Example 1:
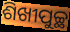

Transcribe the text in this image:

ଶିଖୀପୁଚ୍ଛ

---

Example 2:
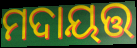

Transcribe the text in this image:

ମଦାୟତ୍ତ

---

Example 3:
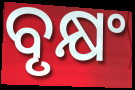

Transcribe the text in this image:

ବୃକ୍ଷଂ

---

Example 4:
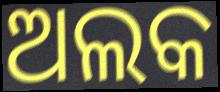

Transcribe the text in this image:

ଅଲକ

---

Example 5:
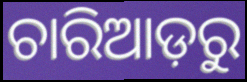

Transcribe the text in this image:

ଚାରିଆଡ଼ରୁ